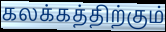
கலக்கத்திற்கும்